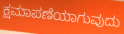
ಕ್ಷಮಾಪಣೆಯಾಗುವುದು